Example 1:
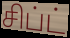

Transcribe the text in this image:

சிப்ட்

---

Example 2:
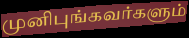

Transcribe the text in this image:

முனிபுங்கவர்களும்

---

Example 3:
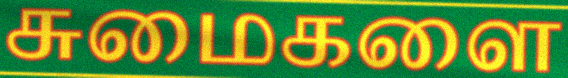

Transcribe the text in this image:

சுமைகளை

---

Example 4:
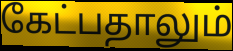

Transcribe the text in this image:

கேட்பதாலும்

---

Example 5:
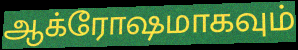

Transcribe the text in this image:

ஆக்ரோஷமாகவும்